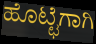
ಹೊಟ್ಟೆಗಾಗಿ